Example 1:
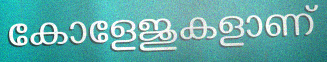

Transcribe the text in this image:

കോളേജുകളാണ്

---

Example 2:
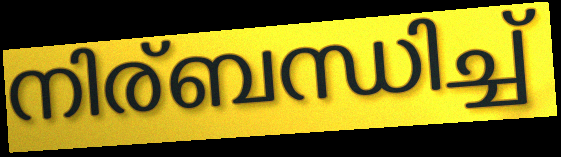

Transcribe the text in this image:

നിര്ബന്ധിച്ച്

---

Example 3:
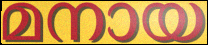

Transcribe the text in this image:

മനായ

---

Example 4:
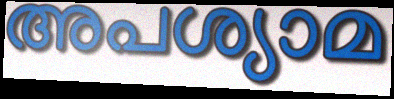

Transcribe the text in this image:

അപശ്യാമ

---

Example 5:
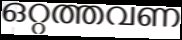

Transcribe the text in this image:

ഒറ്റത്തവണ